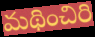
మథించిరి